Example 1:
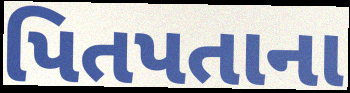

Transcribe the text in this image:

પિતપતાના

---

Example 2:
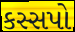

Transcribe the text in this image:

કસ્સપો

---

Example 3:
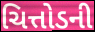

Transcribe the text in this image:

ચિત્તોડની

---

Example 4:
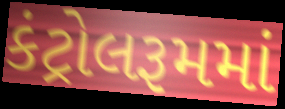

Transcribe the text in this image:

કંટ્રોલરૂમમાં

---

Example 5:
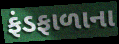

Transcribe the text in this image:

ફંડફાળાના